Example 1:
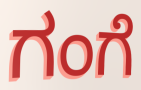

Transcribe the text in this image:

ಗಂಗೆ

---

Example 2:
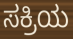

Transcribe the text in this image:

ಸಕ್ರಿಯ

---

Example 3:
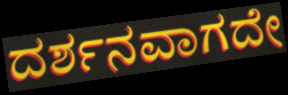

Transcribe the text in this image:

ದರ್ಶನವಾಗದೇ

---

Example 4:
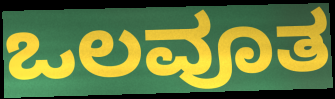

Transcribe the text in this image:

ಒಲವೂತ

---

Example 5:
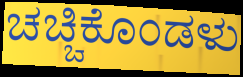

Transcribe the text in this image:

ಚಚ್ಚಿಕೊಂಡಳು